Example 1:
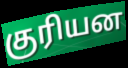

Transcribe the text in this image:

குரியன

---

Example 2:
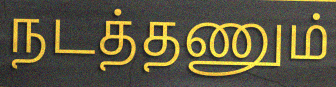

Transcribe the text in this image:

நடத்தணும்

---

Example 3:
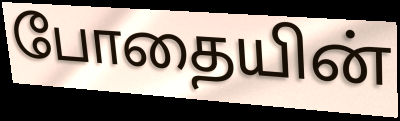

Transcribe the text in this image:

போதையின்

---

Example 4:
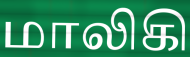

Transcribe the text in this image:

மாலிகி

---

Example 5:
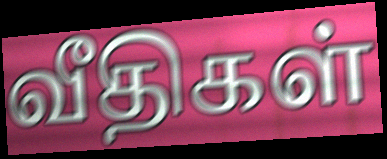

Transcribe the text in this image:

வீதிகள்